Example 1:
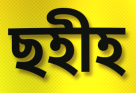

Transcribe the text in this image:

ছহীহ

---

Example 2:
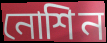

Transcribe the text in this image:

নোশিন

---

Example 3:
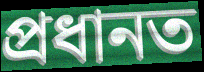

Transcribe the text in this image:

প্রধানত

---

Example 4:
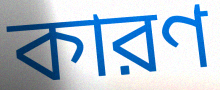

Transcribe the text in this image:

কারণ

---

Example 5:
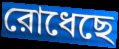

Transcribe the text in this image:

রোধেছে